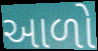
આળો